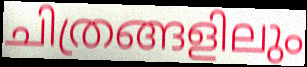
ചിത്രങ്ങളിലും